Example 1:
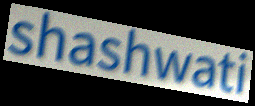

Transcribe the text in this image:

shashwati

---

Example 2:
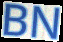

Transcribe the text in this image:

BN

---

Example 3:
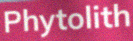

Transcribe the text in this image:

Phytolith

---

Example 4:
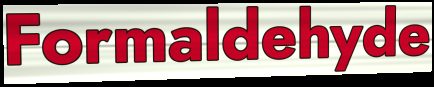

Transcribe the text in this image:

Formaldehyde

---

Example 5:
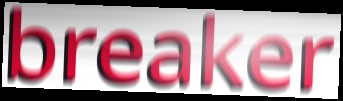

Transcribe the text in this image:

breaker